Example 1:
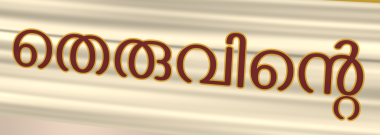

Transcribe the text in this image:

തെരുവിന്റെ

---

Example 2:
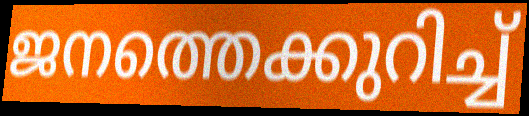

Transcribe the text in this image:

ജനത്തെക്കുറിച്ച്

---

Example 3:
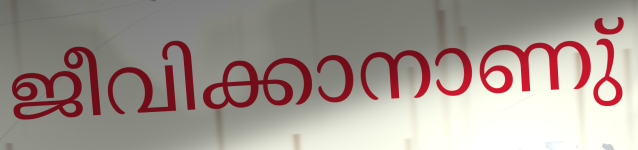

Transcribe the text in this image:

ജീവിക്കാനാണു്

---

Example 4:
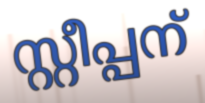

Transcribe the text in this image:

സ്റ്റീപ്പന്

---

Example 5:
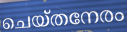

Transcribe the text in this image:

ചെയ്തനേരം